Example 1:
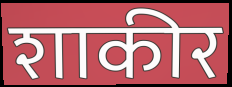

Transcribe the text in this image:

शाकीर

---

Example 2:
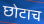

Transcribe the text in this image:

छोटाच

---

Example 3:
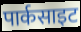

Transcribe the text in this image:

पार्कसाइट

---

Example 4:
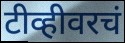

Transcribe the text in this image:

टीव्हीवरचं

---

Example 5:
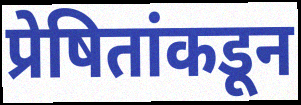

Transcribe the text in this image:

प्रेषितांकडून